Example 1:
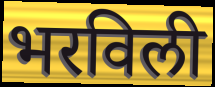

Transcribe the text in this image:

भरविली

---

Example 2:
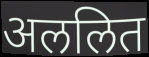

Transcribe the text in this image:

अललित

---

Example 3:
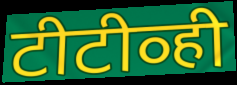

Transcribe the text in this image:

टीटीव्ही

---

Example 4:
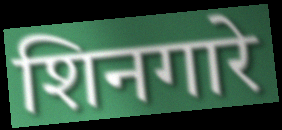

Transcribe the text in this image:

शिनगारे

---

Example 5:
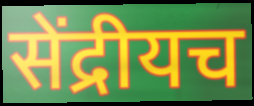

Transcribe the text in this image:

सेंद्रीयच